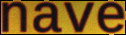
nave